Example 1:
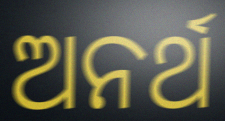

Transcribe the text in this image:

ଅନର୍ଥ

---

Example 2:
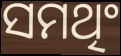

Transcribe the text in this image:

ସମଥିଂ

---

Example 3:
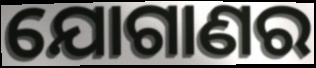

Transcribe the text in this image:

ଯୋଗାଣର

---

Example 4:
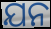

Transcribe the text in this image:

ଯନ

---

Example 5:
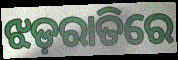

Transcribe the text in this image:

ଝଡ଼ରାତିରେ